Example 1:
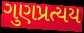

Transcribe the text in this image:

ગુણપ્રત્યય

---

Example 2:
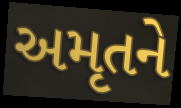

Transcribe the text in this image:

અમૃતને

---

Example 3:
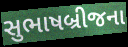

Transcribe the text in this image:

સુભાષબ્રીજના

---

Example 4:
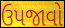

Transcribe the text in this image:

ઉપજાવો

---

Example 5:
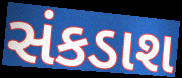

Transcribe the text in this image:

સંકડાશ